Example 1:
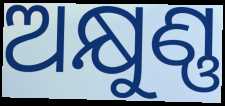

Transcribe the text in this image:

ଅକ୍ଷୁଣ୍ଣ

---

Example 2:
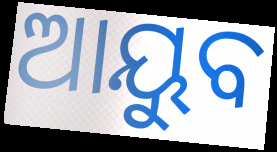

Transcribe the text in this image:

ଆୟୁବ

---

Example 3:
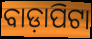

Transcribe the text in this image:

ବାଡ଼ାପିଟା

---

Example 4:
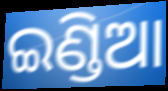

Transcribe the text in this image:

ଇଣ୍ଡିଆ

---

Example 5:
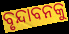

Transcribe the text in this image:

ବୃନ୍ଦାବନକୁ